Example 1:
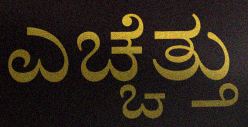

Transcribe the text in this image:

ಎಚ್ಚೆತ್ತು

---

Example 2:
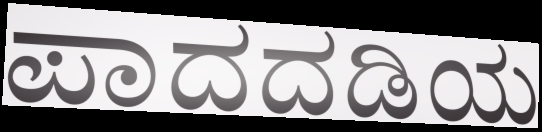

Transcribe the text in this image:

ಪಾದದಡಿಯ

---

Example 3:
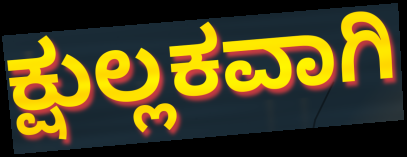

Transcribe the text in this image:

ಕ್ಷುಲ್ಲಕವಾಗಿ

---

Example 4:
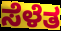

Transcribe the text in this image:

ಸೆಳೆತ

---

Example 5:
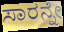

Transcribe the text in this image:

ಸಾರನ್ನೇ